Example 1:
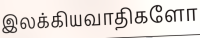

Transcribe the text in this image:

இலக்கியவாதிகளோ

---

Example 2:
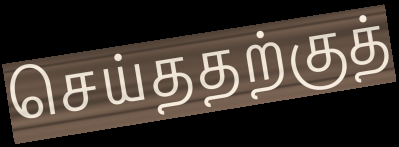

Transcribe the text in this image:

செய்ததற்குத்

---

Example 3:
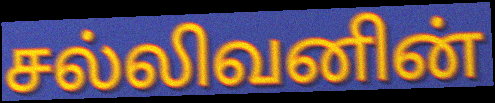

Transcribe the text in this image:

சல்லிவனின்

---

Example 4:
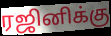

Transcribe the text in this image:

ரஜினிக்கு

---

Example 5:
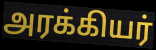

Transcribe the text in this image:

அரக்கியர்